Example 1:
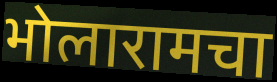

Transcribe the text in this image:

भोलारामचा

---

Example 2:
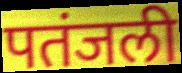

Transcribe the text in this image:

पतंजली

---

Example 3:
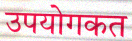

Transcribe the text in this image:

उपयोगकत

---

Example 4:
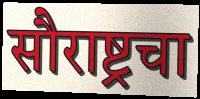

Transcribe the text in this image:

सौराष्ट्रचा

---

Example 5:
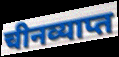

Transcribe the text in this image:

चीनव्याप्त